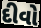
દીવો